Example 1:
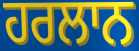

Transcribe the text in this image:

ਹਰਲਾਨ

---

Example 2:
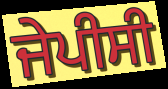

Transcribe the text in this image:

ਜੇਪੀਸੀ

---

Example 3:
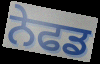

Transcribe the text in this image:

ਨੇਫਡ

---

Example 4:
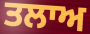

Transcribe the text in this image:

ਤਲਾਅ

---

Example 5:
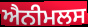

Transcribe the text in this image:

ਐਨੀਮਲਸ